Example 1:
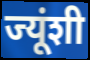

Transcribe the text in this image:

ज्यूंशी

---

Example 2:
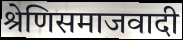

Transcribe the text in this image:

श्रेणिसमाजवादी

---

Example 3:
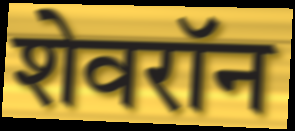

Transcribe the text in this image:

शेवरॉन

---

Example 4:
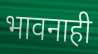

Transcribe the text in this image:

भावनाही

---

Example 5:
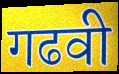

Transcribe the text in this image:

गढवी